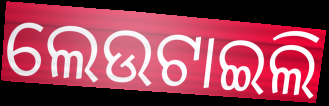
ଲେଉଟାଇଲି